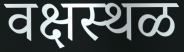
वक्षस्थळ